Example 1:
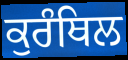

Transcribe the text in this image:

ਕੁਰੰਥਿਲ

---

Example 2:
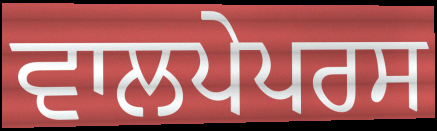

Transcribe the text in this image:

ਵਾਲਪੇਪਰਸ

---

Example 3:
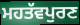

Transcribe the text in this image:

ਮਹਤੱਵਪੁਰਣ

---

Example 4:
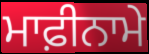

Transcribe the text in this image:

ਮਾਫ਼ੀਨਾਮੇ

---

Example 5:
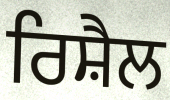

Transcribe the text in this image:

ਰਿਸ਼ੈਲ